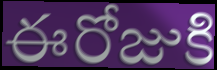
ఈరోజుకి